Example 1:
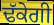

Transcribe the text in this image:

ਢੱਕੇਗੀ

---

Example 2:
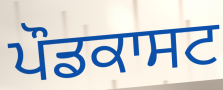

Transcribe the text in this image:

ਪੌਡਕਾਸਟ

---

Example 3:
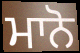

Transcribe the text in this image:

ਮਾਨੋ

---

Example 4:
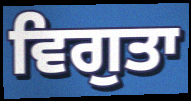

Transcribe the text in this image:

ਵਿਗੁਤਾ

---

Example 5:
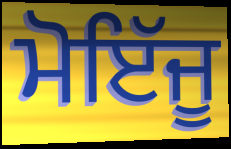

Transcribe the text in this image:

ਮੋਇੱਜੂ